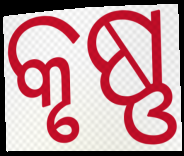
କୃଷ୍ଣ